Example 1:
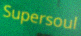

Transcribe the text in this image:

Supersoul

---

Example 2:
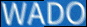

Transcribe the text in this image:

WADO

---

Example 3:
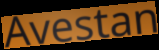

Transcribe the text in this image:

Avestan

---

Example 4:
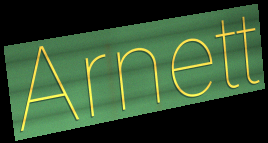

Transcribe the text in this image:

Arnett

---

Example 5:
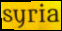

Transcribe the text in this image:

syria